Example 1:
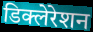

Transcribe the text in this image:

डिक्लेरेशन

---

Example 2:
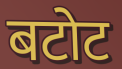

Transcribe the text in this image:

बटोट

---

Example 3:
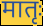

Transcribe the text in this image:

मातृः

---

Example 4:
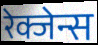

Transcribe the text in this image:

रेक्जेन्स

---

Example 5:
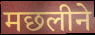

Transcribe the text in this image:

मछलीने